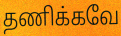
தணிக்கவே